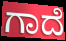
ಗಾದೆ